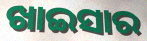
ଖାଇସାର